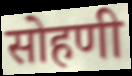
सोहणी